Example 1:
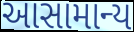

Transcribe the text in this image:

આસામાન્ય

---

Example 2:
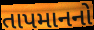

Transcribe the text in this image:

તાપમાનનો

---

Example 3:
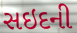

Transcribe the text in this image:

સઇદની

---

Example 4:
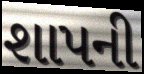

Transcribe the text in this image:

શાપની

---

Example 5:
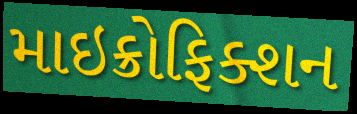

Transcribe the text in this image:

માઇક્રોફિક્શન